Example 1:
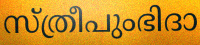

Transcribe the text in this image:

സ്ത്രീപുംഭിദാ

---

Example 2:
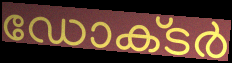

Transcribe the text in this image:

ഡോക്‌ടർ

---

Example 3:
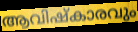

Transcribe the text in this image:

ആവിഷ്കാരവും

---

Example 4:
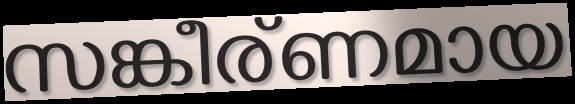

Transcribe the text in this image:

സങ്കീര്ണമായ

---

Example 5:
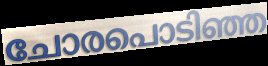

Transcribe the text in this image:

ചോരപൊടിഞ്ഞ